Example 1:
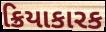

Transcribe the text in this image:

ક્રિયાકારક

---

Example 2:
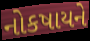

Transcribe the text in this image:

નોકષાયને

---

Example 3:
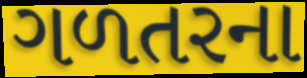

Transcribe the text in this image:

ગળતરના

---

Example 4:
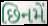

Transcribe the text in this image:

છિનમેં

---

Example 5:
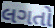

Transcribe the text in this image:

લગતો